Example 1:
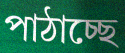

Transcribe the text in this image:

পাঠাচ্ছে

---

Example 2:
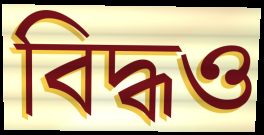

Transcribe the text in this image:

বিদ্ধও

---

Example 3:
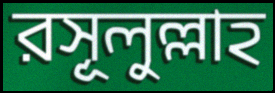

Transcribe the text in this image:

রসূলুল্লাহ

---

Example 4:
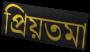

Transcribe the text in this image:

প্রিয়তমা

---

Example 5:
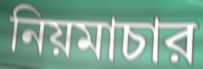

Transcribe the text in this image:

নিয়মাচার